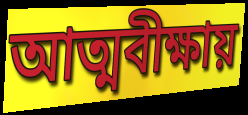
আত্মবীক্ষায়